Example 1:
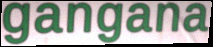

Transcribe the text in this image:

gangana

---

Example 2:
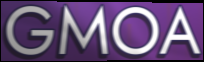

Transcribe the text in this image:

GMOA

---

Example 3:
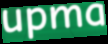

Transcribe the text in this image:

upma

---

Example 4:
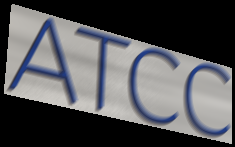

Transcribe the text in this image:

ATCC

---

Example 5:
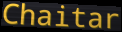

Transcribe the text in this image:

Chaitar